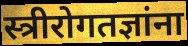
स्त्रीरोगतज्ञांना